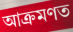
আক্ৰমণত